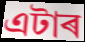
এটাৰ